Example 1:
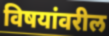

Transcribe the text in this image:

विषयांवरील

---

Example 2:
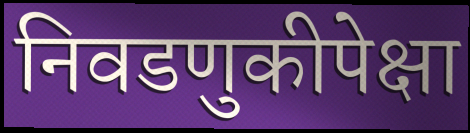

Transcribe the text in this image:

निवडणुकीपेक्षा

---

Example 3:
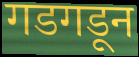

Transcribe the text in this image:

गडगडून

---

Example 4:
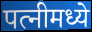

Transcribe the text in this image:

पत्नीमध्ये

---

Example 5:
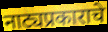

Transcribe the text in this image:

नाट्यप्रकाराचे